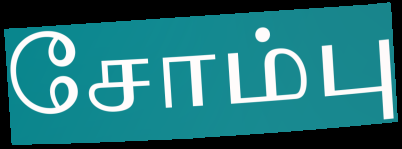
சோம்பு